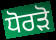
ਧੋਰੜੋ